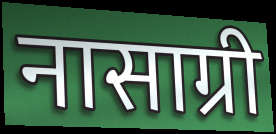
नासाग्री